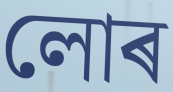
লোৰ